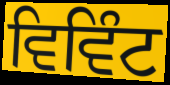
ਵਿਵਿੰਟ